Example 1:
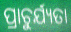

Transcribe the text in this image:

ପ୍ରାଚୁର୍ଯ୍ୟତା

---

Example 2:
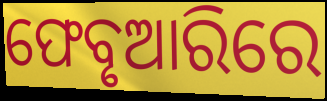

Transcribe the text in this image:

ଫେବୃଆରିରେ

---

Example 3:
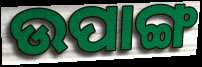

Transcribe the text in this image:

ଉପାଙ୍ଗ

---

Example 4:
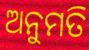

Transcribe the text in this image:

ଅନୁମତି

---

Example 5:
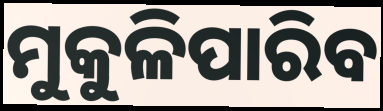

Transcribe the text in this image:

ମୁକୁଳିପାରିବ